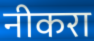
नीकरा